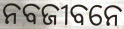
ନବଜୀବନେ